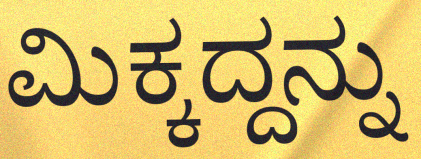
ಮಿಕ್ಕದ್ದನ್ನು